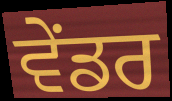
ਵੇਂਡਰ